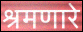
श्रमणारे